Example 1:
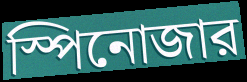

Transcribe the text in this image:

স্পিনোজার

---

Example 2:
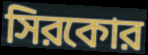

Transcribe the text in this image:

সিরকোর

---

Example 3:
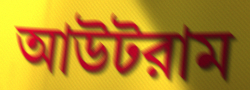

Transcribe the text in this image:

আউটরাম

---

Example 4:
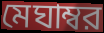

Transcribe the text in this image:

মেঘাম্বর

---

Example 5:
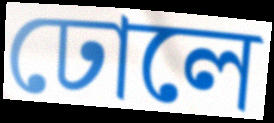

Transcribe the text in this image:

ঢোলে